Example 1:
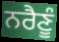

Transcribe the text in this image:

ਨਰੈਣੂੰ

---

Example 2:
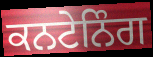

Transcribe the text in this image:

ਕਨਟੇਨਿੰਗ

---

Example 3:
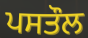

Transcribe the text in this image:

ਪਸਤੌਲ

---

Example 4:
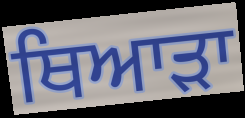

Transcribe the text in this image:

ਥਿਆੜਾ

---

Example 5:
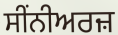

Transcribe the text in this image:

ਸੀਂਨੀਅਰਜ਼